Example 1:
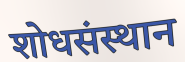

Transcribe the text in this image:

शोधसंस्थान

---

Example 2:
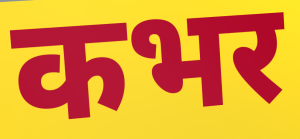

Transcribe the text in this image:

कभर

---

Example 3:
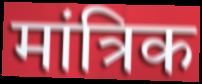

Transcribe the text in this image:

मांत्रिक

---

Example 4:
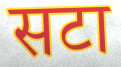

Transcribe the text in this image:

सटा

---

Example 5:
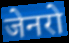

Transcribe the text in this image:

जेनरो